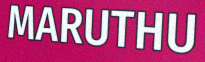
MARUTHU